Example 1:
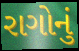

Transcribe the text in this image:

રાગોનું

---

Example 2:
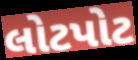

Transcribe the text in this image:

લોટપોટ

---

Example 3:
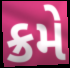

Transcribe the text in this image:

ક્રમે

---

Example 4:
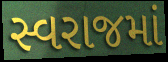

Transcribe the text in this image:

સ્વરાજમાં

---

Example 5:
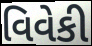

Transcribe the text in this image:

વિવેકી